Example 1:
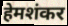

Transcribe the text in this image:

हेमशंकर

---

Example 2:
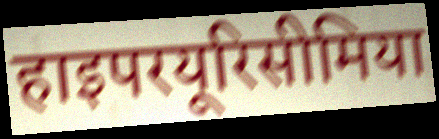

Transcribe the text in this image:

हाइपरयूरिसीमिया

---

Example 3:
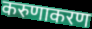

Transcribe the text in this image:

करुणाकरण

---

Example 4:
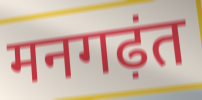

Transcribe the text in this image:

मनगढ़ंत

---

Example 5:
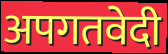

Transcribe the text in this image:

अपगतवेदी